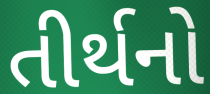
તીર્થનો